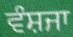
ਵੰਸ਼ਜਾ